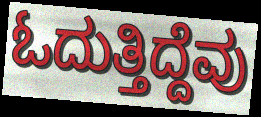
ಓದುತ್ತಿದ್ದೆವು